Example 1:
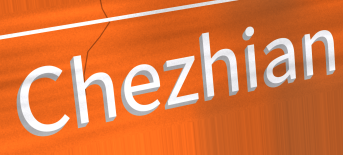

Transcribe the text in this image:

Chezhian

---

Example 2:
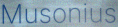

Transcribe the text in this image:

Musonius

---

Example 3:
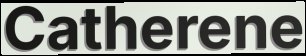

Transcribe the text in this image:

Catherene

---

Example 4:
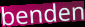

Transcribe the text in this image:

benden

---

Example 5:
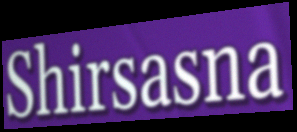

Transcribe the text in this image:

Shirsasna